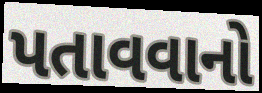
પતાવવાનો